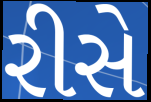
રીસે